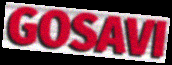
GOSAVI